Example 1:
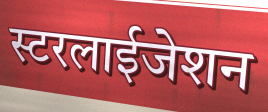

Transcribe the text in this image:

स्टरलाईजेशन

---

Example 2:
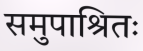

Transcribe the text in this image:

समुपाश्रितः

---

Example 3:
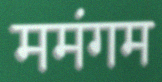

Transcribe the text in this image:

ममंगम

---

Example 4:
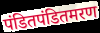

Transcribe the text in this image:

पंडितपंडितमरण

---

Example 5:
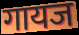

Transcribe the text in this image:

गायज